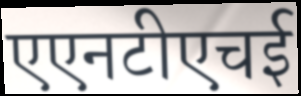
एएनटीएचई